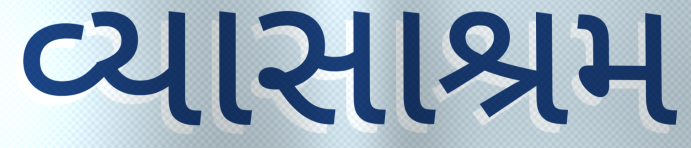
વ્યાસાશ્રમ